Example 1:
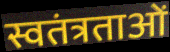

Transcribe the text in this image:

स्वतंत्रताओं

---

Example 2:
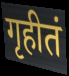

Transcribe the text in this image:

गृहीतं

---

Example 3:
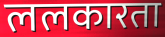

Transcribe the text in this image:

ललकारता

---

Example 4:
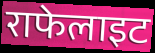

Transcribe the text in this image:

राफेलाइट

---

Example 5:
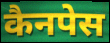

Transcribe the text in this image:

कैनपेस